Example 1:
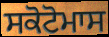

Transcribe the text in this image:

ਸਕੋਟੋਮਾਸ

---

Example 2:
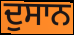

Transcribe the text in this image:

ਦੁਸਾਨ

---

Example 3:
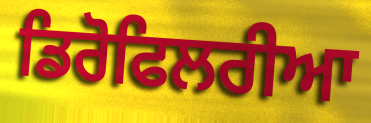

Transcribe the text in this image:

ਡਿਰੋਫਿਲਰੀਆ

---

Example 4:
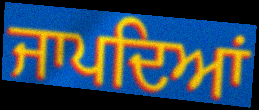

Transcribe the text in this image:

ਜਾਪਦਿਆਂ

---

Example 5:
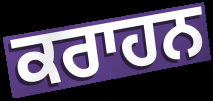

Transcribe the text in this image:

ਕਰਾਹਨ